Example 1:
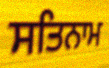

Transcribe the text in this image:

ਸਤਿਨਾਮ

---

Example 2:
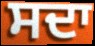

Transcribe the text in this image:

ਸਦਾ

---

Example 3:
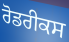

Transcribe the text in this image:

ਰੋਡਰੀਕਸ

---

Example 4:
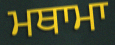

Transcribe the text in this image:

ਮਥਾਮਾ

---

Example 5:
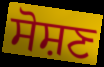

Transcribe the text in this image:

ਸੋਸ਼ਣ